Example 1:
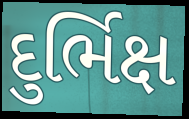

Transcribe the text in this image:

દુર્ભિક્ષ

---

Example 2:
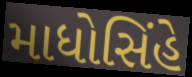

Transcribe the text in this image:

માધોસિંહે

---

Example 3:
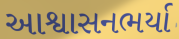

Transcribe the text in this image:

આશ્વાસનભર્યા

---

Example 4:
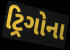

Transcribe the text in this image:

ટ્રિગોના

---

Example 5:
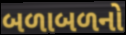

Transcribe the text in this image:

બળાબળનો